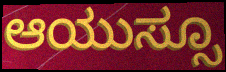
ಆಯುಸ್ಸೂ